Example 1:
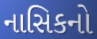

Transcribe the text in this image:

નાસિકનો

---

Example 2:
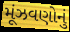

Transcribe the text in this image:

મૂંઝવણોનું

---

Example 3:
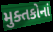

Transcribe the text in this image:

મુક્તકોનાં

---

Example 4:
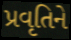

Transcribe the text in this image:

પ્રવૃતિને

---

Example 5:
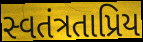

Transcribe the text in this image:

સ્વતંત્રતાપ્રિય